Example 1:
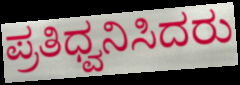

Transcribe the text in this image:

ಪ್ರತಿಧ್ವನಿಸಿದರು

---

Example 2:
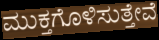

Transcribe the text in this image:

ಮುಕ್ತಗೊಳಿಸುತ್ತೇವೆ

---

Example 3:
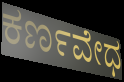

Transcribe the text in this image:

ಕರ್ಣವೇಧ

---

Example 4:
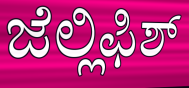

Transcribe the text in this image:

ಜೆಲ್ಲಿಫಿಶ್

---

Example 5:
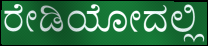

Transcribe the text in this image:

ರೇಡಿಯೋದಲ್ಲಿ